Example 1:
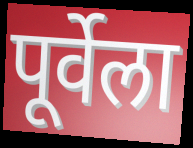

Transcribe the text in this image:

पूर्वेला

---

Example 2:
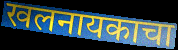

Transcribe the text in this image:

खलनायकाचा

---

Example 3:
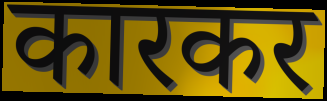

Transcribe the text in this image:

कारकर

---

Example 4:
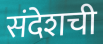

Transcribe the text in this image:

संदेशची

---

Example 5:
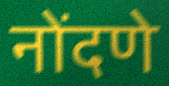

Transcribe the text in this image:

नोंदणे